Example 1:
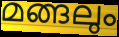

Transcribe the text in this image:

മങ്ങലും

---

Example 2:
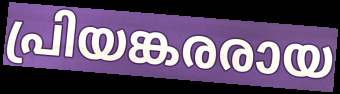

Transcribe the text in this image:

പ്രിയങ്കരരായ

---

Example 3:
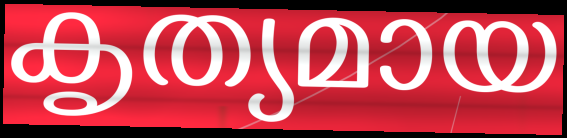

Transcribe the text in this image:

കൃത്യമായ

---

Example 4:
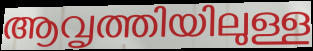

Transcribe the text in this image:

ആവൃത്തിയിലുള്ള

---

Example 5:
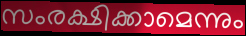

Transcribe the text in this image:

സംരക്ഷിക്കാമെന്നും